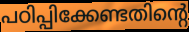
പഠിപ്പിക്കേണ്ടതിന്റെ